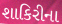
શાકિરીના